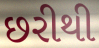
છરીથી